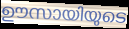
ഊസായിയുടെ